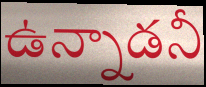
ఉన్నాడనీ